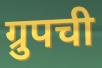
ग्रुपची